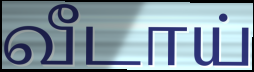
வீடாய்